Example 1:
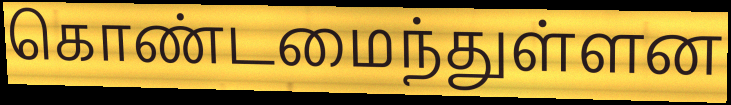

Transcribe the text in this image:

கொண்டமைந்துள்ளன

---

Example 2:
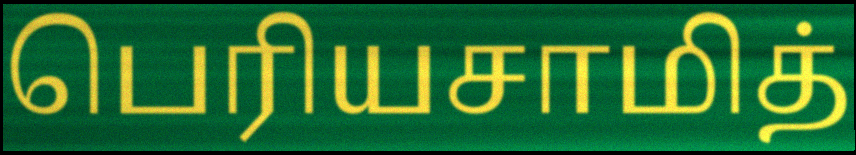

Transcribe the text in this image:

பெரியசாமித்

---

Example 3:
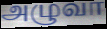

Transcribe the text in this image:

அழுவா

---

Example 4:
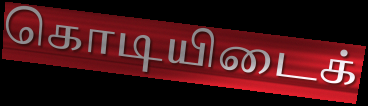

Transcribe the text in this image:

கொடியிடைக்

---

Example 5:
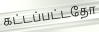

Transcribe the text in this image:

கட்டப்பட்டதோ